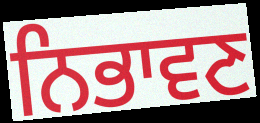
ਨਿਭਾਵਣ